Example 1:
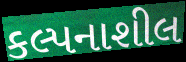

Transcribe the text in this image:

કલ્પનાશીલ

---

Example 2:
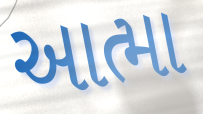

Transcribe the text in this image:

આત્મા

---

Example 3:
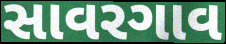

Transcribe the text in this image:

સાવરગાવ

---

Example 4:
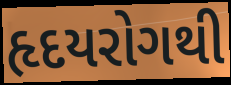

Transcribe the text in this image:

હૃદયરોગથી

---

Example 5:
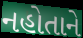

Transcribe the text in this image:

નહોતાને